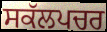
ਸਕੱਲਪਚਰ